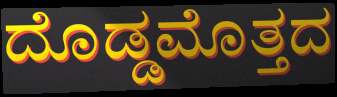
ದೊಡ್ಡಮೊತ್ತದ